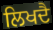
ਲਿਖਦੈ